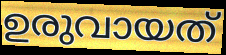
ഉരുവായത്